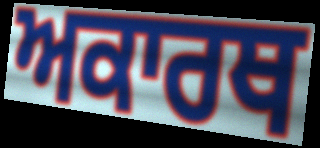
ਅਕਾਰਥ